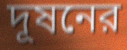
দূষনের